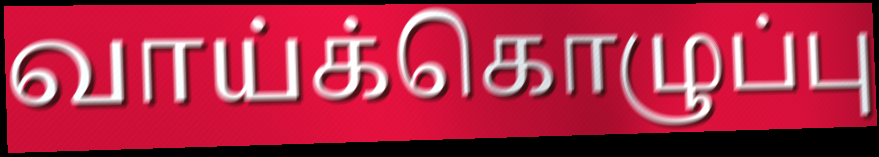
வாய்க்கொழுப்பு